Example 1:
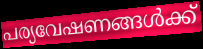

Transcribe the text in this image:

പര്യവേഷണങ്ങൾക്ക്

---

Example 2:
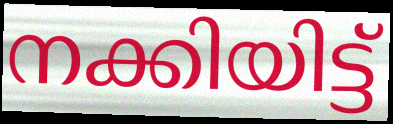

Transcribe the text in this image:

നക്കിയിട്ട്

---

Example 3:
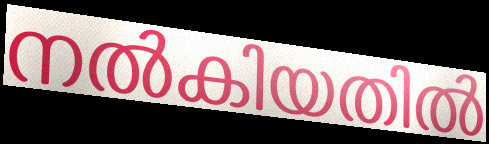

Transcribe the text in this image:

നൽകിയതിൽ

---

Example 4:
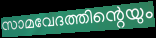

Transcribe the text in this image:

സാമവേദത്തിന്റെയും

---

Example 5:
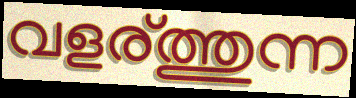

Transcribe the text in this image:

വളര്ത്തുന്ന